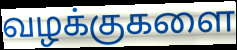
வழக்குகளை